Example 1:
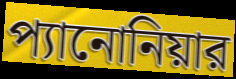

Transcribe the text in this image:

প্যানোনিয়ার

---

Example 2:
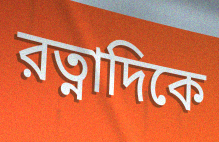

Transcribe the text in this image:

রত্নাদিকে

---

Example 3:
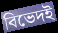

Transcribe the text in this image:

বিভেদই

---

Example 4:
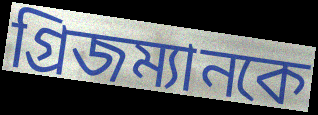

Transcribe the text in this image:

গ্রিজম্যানকে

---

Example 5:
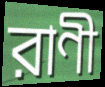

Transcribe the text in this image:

রাণী